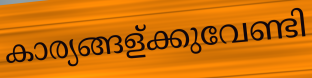
കാര്യങ്ങള്ക്കുവേണ്ടി